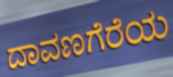
ದಾವಣಗೆರೆಯ